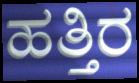
ಹತ್ತಿರ